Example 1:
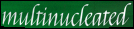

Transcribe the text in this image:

multinucleated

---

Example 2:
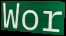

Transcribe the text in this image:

Wor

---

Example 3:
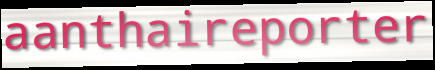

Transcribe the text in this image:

aanthaireporter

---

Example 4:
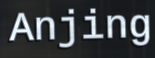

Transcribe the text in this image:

Anjing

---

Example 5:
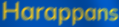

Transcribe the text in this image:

Harappans